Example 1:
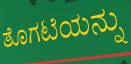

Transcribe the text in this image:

ತೊಗಟೆಯನ್ನು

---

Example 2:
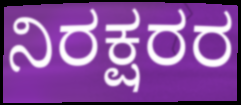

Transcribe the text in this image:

ನಿರಕ್ಷರರ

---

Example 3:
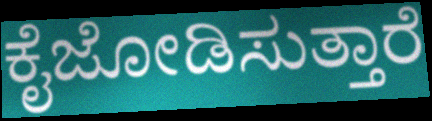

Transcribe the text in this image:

ಕೈಜೋಡಿಸುತ್ತಾರೆ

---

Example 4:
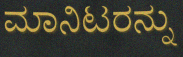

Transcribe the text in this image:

ಮಾನಿಟರನ್ನು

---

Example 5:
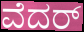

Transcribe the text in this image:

ವೆದರ್